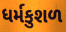
ધર્મકુશળ